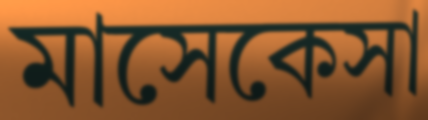
মাসেকেসা